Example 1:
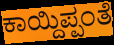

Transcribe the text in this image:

ಕಾಯ್ದಿಪ್ಪಂತೆ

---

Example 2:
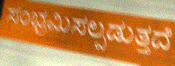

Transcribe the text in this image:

ಸಂಭ್ರಮಿಸಲ್ಪಡುತ್ತದೆ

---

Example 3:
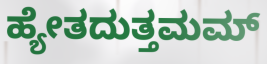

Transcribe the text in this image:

ಹ್ಯೇತದುತ್ತಮಮ್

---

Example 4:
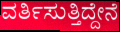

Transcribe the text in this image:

ವರ್ತಿಸುತ್ತಿದ್ದೇನೆ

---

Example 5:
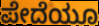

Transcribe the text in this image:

ಪೇದೆಯೂ